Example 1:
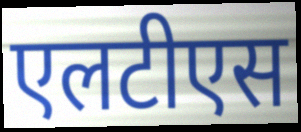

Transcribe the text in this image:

एलटीएस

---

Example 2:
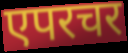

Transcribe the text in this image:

एपरचर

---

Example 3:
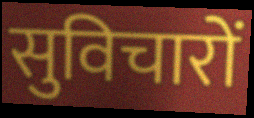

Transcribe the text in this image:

सुविचारों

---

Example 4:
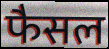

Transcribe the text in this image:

फैसल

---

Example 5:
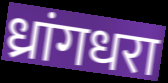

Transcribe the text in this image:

ध्रांगधरा